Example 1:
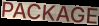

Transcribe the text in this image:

PACKAGE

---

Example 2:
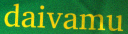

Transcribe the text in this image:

daivamu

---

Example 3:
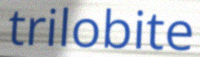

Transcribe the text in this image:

trilobite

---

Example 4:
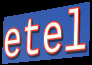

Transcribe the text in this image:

etel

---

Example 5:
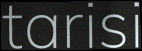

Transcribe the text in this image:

tarisi